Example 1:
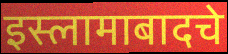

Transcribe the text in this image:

इस्लामाबादचे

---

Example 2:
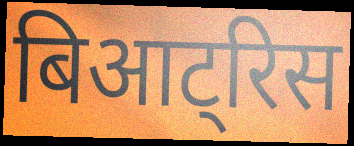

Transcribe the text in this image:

बिआट्रिस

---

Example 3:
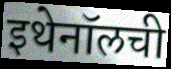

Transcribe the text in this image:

इथेनॉलची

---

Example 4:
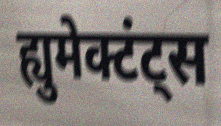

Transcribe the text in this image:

ह्युमेक्टंट्स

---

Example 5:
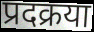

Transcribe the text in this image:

प्रदक्रया